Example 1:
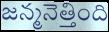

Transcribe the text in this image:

జన్మనెత్తింది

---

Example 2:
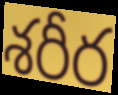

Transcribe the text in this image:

శరీర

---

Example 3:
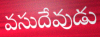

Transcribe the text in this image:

వసుదేవుడు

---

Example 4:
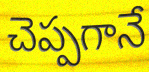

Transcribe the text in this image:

చెప్పగానే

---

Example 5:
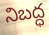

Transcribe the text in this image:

నిబద్ధ